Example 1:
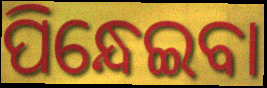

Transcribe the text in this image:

ପିନ୍ଧେଇବା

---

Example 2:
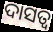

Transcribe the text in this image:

ଦାସତ୍ଵ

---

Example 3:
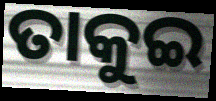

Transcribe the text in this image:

ତାକୁଇ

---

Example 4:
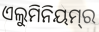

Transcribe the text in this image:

ଏଲୁମିନିୟମ୍‌ର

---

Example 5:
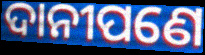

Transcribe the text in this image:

ଦାନୀପଣେ